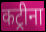
कट्रीना